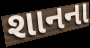
શાનના